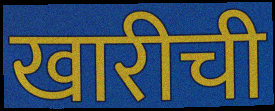
खारीची